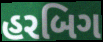
હરબિગ